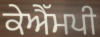
ਕੇਐੱਮਪੀ